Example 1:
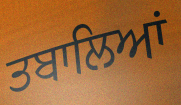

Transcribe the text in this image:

ਤਬਾਲਿਆਂ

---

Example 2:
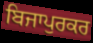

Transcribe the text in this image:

ਬਿਜਾਪੁਰਕਰ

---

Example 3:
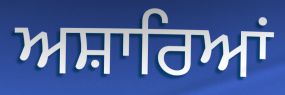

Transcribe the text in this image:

ਅਸ਼ਾਰਿਆਂ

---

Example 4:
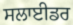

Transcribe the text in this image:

ਸਲਾਈਡਰ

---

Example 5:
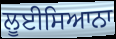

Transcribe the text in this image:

ਲੂਈਸਿਆਨਾ